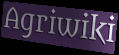
Agriwiki